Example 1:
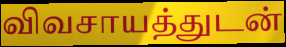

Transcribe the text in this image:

விவசாயத்துடன்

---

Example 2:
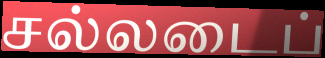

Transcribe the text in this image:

சல்லடைப்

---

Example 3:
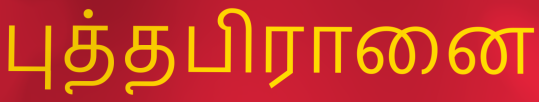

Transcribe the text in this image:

புத்தபிரானை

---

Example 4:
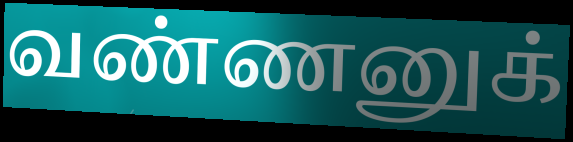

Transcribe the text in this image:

வண்ணனுக்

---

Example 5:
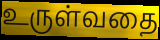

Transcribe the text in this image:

உருள்வதை